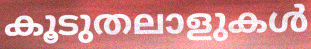
കൂടുതലാളുകൾ